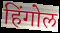
हिंगोल